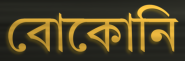
বোকোনি